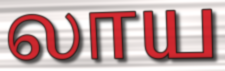
லாய